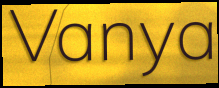
Vanya